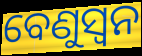
ବେଣୁସ୍ଵନ